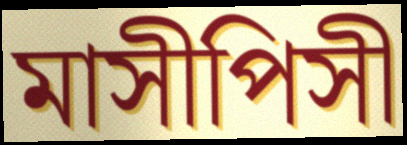
মাসীপিসী